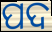
ପଦ